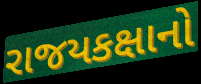
રાજયકક્ષાનો